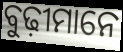
ବୁଢ଼ୀମାନେ